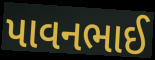
પાવનભાઈ